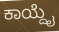
ಕಾಯ್ದೈ